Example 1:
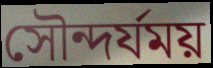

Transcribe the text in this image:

সৌন্দর্যময়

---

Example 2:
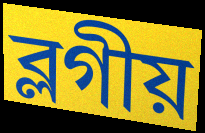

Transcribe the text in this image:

ব্লগীয়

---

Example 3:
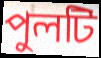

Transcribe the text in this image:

পুলটি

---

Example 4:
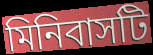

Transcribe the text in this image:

মিনিবাসটি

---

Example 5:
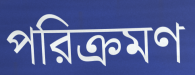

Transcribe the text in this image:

পরিক্রমণ